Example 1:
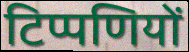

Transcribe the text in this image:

टिप्पणियों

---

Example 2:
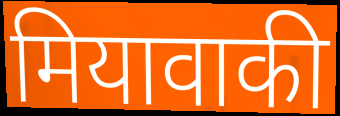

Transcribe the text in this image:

मियावाकी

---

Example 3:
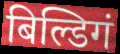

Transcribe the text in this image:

बिल्डिगं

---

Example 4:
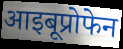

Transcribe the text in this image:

आइबूप्रोफेन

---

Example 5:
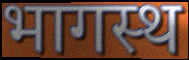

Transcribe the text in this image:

भागस्थ